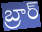
బ్రార్